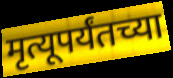
मृत्यूपर्यंतच्या